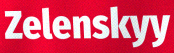
Zelenskyy